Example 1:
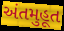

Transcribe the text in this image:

અંતમુહૂત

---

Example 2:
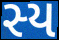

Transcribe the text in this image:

સ્ય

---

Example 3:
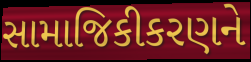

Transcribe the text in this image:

સામાજિકીકરણને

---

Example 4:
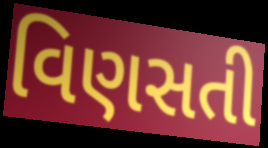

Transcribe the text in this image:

વિણસતી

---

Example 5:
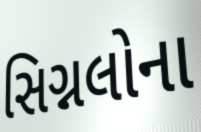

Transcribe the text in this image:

સિગ્નલોના